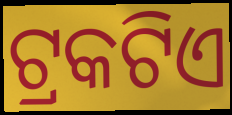
ଟ୍ରକଟିଏ